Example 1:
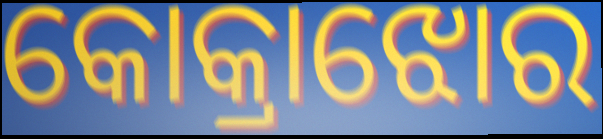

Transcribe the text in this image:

କୋକ୍ରାଝୋର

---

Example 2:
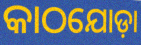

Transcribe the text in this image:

କାଠଯୋଡ଼ା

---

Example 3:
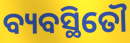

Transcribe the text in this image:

ବ୍ୟବସ୍ଥିତୌ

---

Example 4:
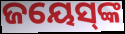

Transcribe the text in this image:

ଜୟେସ୍‌ଙ୍କ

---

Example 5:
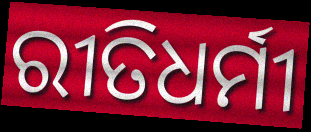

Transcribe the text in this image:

ରୀତିଧର୍ମୀ